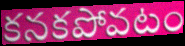
కనకపోవటం